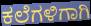
ಕಲೆಗಳಿಗಾಗಿ